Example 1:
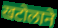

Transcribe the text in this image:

खटोलाने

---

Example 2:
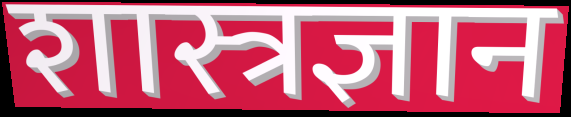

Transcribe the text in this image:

शास्त्रज्ञान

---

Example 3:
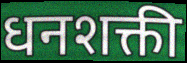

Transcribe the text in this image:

धनशक्ती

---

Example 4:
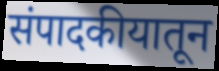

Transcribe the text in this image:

संपादकीयातून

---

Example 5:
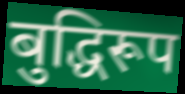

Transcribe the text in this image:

बुद्धिरूप